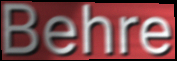
Behre